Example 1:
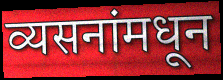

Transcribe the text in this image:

व्यसनांमधून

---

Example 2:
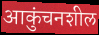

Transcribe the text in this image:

आकुंचनशील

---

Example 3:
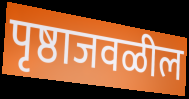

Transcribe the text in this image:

पृष्ठाजवळील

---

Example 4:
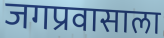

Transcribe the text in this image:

जगप्रवासाला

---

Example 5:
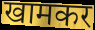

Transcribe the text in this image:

खामकर